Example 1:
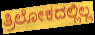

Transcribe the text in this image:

ತ್ರಿಲೋಕದಲ್ಲಿಲ್ಲ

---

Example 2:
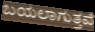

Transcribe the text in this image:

ಬಯಲಾಗುತ್ತವೆ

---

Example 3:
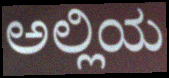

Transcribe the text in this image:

ಅಲ್ಲಿಯ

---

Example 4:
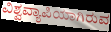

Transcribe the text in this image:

ವಿಶ್ವವ್ಯಾಪಿಯಾಗಿರುವ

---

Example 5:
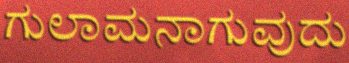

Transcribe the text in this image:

ಗುಲಾಮನಾಗುವುದು